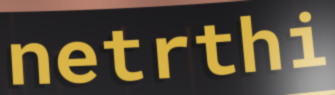
netrthi